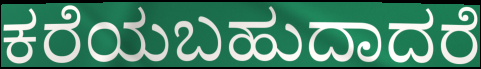
ಕರೆಯಬಹುದಾದರೆ